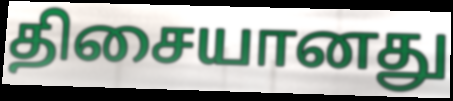
திசையானது